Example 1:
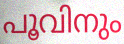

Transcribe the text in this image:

പൂവിനും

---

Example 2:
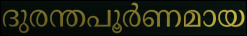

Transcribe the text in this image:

ദുരന്തപൂർണമായ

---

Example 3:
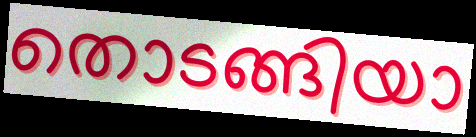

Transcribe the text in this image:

തൊടങ്ങിയാ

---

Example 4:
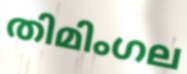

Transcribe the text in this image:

തിമിംഗല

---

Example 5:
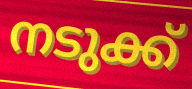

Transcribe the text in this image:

നടുക്ക്